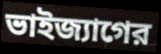
ভাইজ্যাগের